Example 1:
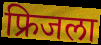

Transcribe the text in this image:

फ्रिजला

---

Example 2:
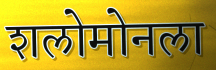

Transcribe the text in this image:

शलोमोनला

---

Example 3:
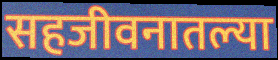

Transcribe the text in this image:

सहजीवनातल्या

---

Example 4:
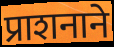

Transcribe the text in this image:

प्राशनाने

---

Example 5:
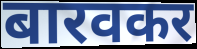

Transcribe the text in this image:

बारवकर